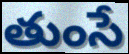
తుంసే